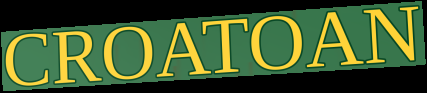
CROATOAN